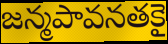
జన్మపావనతకై